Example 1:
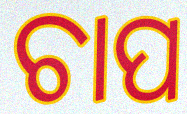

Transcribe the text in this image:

ଚାପ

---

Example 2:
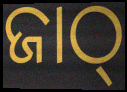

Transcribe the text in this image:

ଜାଠ୍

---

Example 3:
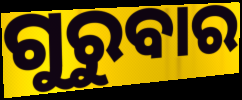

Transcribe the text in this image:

ଗୁରୁବାର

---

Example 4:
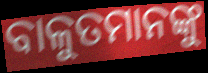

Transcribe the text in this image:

ବାଳୁତମାନଙ୍କୁ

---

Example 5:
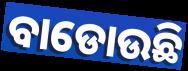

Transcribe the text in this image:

ବାଡୋଉଛି